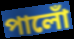
পালোঁ